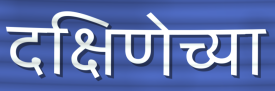
दक्षिणेच्या